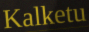
Kalketu